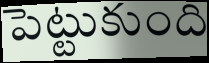
పెట్టుకుంది